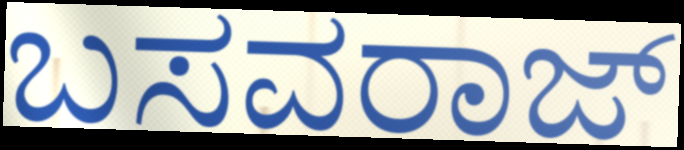
ಬಸವರಾಜ್